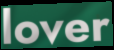
lover